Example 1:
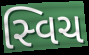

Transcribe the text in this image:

સ્વિચ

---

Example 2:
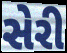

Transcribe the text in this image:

સેરી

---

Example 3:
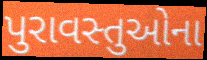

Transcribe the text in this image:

પુરાવસ્તુઓના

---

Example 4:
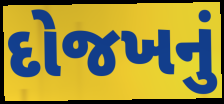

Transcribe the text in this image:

દોજખનું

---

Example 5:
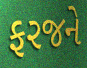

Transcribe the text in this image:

ફરજને